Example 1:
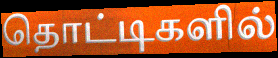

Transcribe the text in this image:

தொட்டிகளில்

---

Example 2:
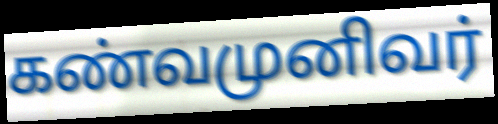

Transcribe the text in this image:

கண்வமுனிவர்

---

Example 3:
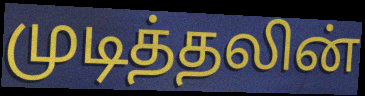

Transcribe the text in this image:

முடித்தலின்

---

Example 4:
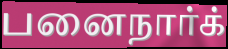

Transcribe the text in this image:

பனைநார்க்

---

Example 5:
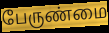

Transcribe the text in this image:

பேருண்மை